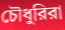
চৌধুরিরা